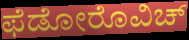
ಫೆಡೋರೊವಿಚ್